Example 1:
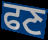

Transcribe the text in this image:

ਫਣ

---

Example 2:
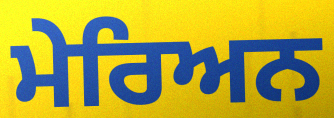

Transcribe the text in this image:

ਮੇਰਿਅਨ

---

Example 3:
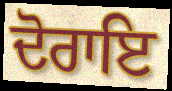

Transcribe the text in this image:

ਦੋਰਾਇ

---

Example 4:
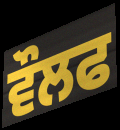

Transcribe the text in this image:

ਵੌਲਫ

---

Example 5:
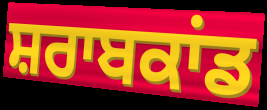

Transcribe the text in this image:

ਸ਼ਰਾਬਕਾਂਡ